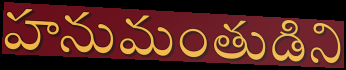
హనుమంతుడిని